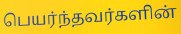
பெயர்ந்தவர்களின்